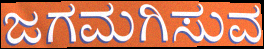
ಜಗಮಗಿಸುವ